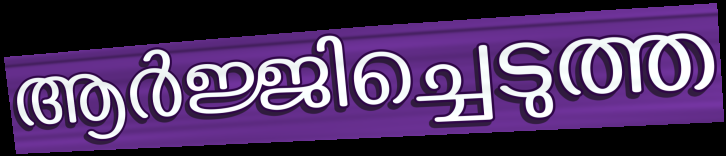
ആർജ്ജിച്ചെടുത്ത